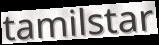
tamilstar